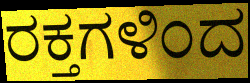
ರಕ್ತಗಳಿಂದ